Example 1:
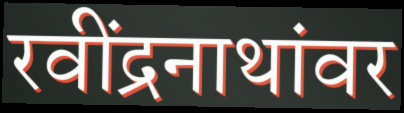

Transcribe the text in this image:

रवींद्रनाथांवर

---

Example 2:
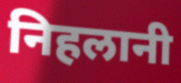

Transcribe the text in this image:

निहलानी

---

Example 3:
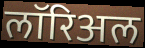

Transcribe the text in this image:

लॉरिअल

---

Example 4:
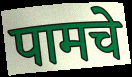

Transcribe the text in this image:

पामचे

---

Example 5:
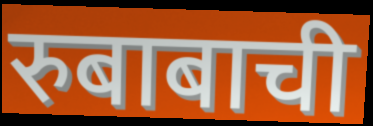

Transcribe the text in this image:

रुबाबाची